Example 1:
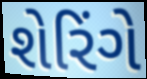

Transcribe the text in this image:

શેરિંગે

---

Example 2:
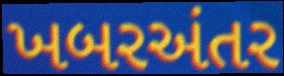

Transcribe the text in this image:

ખબરઅંતર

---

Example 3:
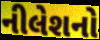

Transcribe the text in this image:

નીલેશનો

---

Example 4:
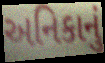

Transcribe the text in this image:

અનિકાનું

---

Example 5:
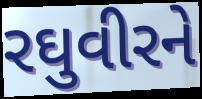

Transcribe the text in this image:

રઘુવીરને